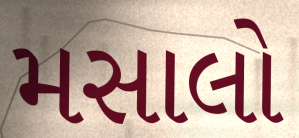
મસાલો